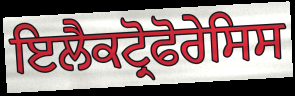
ਇਲੈਕਟ੍ਰੋਫੋਰੇਸਿਸ